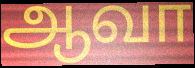
ஆவா